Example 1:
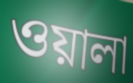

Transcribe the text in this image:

ওয়ালা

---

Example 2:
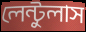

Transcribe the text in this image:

লেন্টুলাস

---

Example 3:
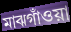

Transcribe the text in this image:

মাঝগাঁওয়া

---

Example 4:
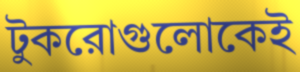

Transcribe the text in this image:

টুকরোগুলোকেই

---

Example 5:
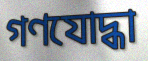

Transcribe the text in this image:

গণযোদ্ধা